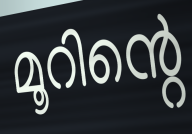
മൂറിന്റെ